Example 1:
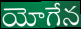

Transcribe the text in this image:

యోగేన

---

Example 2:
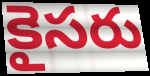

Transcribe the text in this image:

కైసరు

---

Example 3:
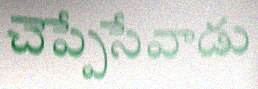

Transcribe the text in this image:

చెప్పేసేవాడు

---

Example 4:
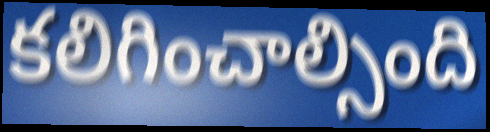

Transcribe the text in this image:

కలిగించాల్సింది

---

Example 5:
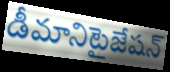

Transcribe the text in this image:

డీమానిటైజేషన్